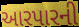
આરપારની